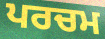
ਪਰਚਮ